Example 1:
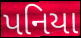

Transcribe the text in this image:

પનિયા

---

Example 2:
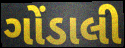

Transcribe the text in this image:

ગોંડાલી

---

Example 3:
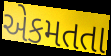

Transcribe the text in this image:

એકમતતા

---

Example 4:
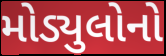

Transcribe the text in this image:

મોડ્યુલોનો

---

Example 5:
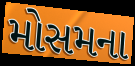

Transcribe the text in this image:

મોસમના